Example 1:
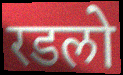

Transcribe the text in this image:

रडलो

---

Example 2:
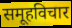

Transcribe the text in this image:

समूहविचार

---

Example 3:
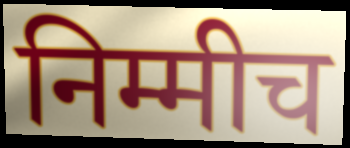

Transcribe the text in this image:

निम्मीच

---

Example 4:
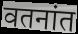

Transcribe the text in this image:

वतनांत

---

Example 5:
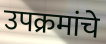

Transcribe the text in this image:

उपक्रमांचे